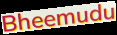
Bheemudu